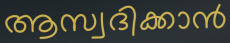
ആസ്വദിക്കാൻ